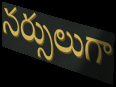
నర్సులుగా